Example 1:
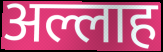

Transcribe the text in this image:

अल्लाह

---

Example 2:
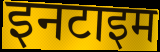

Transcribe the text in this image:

इनटाइम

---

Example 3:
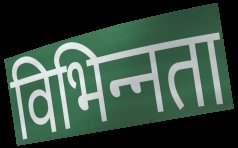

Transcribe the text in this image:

विभिन्‍नता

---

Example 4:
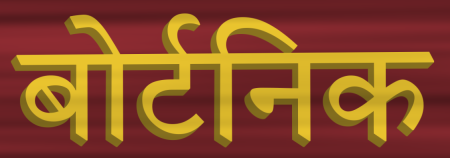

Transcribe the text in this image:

बोर्टनिक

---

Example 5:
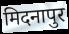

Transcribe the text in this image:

मिदनापुर